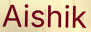
Aishik